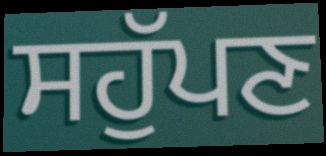
ਸਹੁੱਪਣ